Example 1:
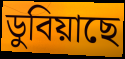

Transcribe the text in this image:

ডুবিয়াছে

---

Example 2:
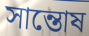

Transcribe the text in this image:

সান্তোষ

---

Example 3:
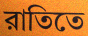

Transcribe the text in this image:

রাতিতে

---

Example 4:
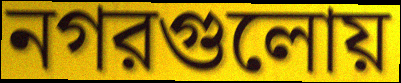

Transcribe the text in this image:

নগরগুলোয়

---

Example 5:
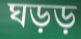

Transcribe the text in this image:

ঘড়ড়